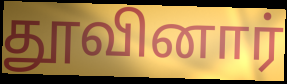
தூவினார்